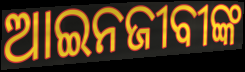
ଆଇନଜୀବୀଙ୍କ